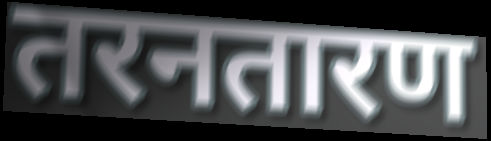
तरनतारण